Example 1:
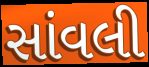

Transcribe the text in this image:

સાંવલી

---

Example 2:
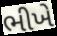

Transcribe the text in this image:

ભીખે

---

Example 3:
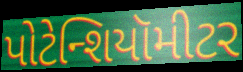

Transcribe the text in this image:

પોટેન્શિયૉમીટર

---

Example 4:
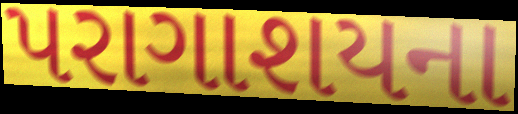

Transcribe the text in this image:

પરાગાશયના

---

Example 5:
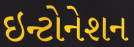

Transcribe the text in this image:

ઇન્ટોનેશન